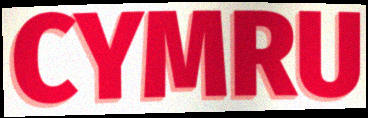
CYMRU